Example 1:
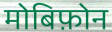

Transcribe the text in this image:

मोबिफ़ोन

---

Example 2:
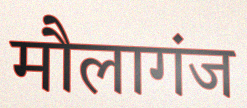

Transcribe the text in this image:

मौलागंज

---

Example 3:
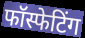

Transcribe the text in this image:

फॉस्फेटिंग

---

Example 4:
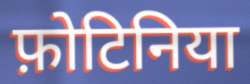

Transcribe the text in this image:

फ़ोटिनिया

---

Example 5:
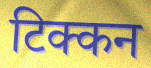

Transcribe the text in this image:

टिक्कन